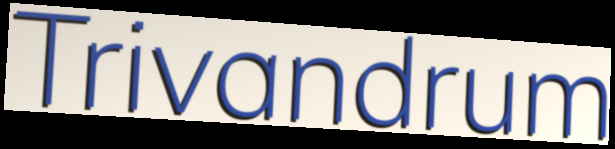
Trivandrum